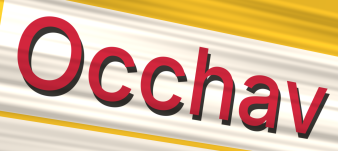
Occhav